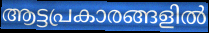
ആട്ടപ്രകാരങ്ങളിൽ